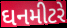
ઘનમીટરે